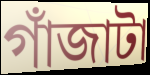
গাঁজাটা